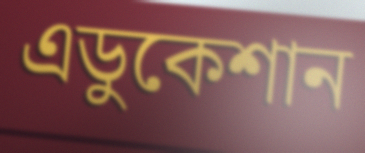
এডুকেশান